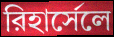
রিহার্সেলে